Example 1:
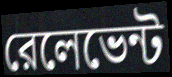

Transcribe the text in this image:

রেলেভেন্ট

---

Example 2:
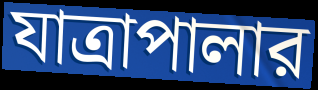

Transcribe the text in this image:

যাত্রাপালার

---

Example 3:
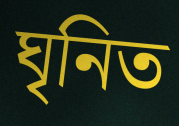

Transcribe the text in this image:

ঘৃনিত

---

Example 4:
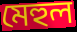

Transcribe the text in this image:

মেহুল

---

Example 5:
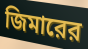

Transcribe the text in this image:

জিমারের